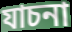
যাচনা